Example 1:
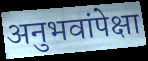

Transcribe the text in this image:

अनुभवांपेक्षा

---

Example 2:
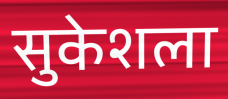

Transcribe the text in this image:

सुकेशला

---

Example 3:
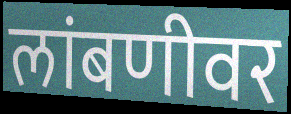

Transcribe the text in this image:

लांबणीवर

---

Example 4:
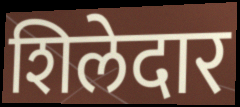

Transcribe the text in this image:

शिलेदार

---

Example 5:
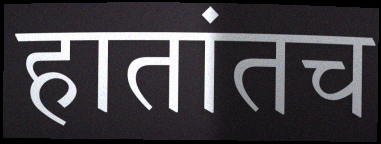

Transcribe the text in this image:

हातांतच